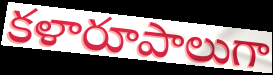
కళారూపాలుగా